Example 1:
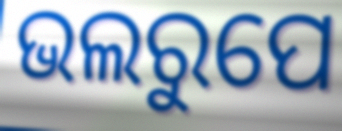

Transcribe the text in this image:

ଭଲରୁପେ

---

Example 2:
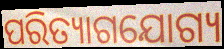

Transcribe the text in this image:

ପରିତ୍ୟାଗଯୋଗ୍ୟ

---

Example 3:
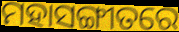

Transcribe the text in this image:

ମହାସଙ୍ଗୀତରେ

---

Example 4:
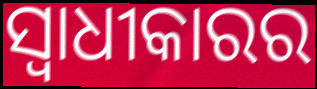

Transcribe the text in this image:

ସ୍ୱାଧୀକାରର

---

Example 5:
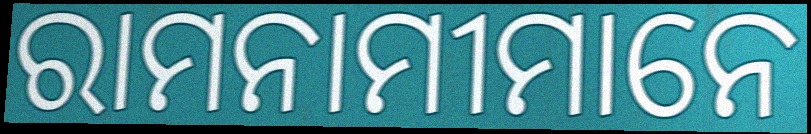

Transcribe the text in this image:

ରାମନାମୀମାନେ